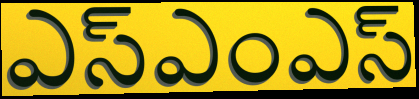
ఎస్ఎంఎస్